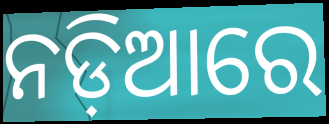
ନଡ଼ିଆରେ